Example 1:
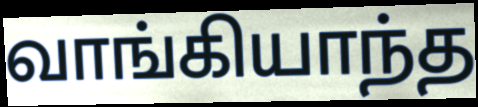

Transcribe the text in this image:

வாங்கியாந்த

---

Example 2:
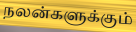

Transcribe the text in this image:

நலன்களுக்கும்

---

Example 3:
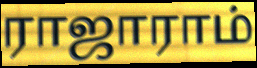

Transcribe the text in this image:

ராஜாராம்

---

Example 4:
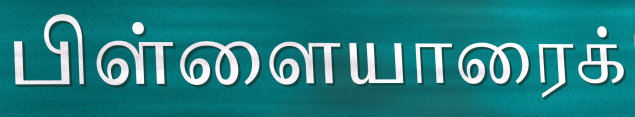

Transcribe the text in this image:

பிள்ளையாரைக்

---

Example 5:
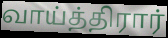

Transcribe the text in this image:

வாய்த்திரார்